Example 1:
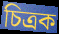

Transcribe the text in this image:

চিত্ৰক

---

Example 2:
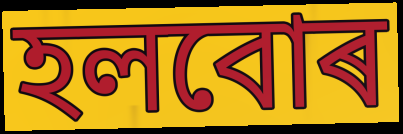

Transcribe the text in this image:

হলবোৰ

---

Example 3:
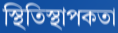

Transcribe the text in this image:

স্থিতিস্থাপকতা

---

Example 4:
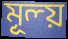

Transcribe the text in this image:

মূল্য়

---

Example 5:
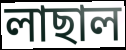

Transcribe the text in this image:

লাছাল